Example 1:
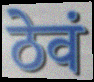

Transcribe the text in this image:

ठेवं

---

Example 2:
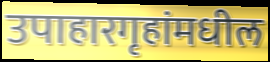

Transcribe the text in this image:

उपाहारगृहांमधील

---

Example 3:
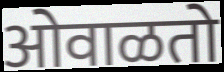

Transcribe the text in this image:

ओवाळतो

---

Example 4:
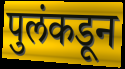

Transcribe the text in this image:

पुलंकडून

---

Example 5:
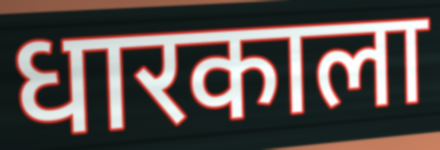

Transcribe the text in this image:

धारकाला